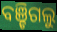
ବଞ୍ଚିଗଲୁ